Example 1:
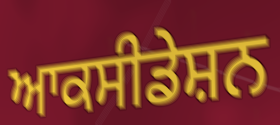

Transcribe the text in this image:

ਆਕਸੀਡੇਸ਼ਨ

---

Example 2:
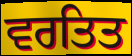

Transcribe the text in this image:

ਵਰਤਿਤ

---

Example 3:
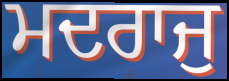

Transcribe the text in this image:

ਮਦਰਾਜੁ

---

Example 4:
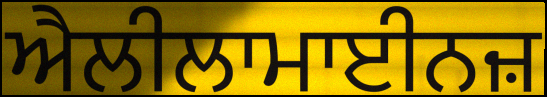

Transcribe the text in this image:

ਐਲੀਲਾਮਾਈਨਜ਼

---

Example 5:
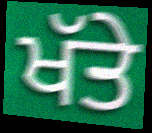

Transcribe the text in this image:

ਖੱਤੇ